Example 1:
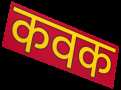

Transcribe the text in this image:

कवक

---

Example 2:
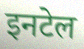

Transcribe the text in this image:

इनटेल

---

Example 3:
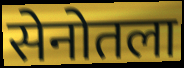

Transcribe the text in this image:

सेनोतला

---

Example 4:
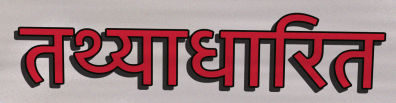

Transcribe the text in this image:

तथ्याधारित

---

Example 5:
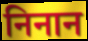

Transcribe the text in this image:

निनान